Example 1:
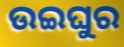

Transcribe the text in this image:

ଉଇଘୁର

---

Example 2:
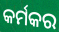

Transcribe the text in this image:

କର୍ମକର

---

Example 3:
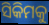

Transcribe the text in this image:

ସିକିମକୁ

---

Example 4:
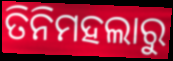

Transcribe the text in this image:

ତିନିମହଲାରୁ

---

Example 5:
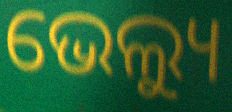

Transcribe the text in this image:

ଭେଲ୍ୟୁ